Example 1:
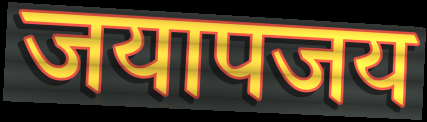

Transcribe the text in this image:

जयापजय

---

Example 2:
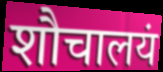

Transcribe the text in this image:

शौचालयं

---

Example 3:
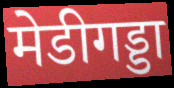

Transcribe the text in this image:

मेडीगड्डा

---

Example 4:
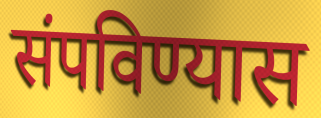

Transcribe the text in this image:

संपविण्यास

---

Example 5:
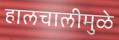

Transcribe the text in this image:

हालचालीमुळे